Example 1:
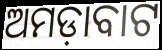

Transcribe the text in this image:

ଅମଡ଼ାବାଟ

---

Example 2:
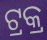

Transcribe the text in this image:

ଟ୍ରକ୍ର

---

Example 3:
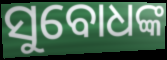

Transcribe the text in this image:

ସୁବୋଧଙ୍କ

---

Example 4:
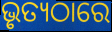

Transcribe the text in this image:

ଭୃତ୍ୟଠାରେ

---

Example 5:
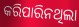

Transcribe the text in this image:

କରିପାରିନଥିଲା